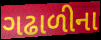
ગઢાળીના